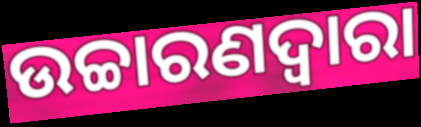
ଉଚ୍ଚାରଣଦ୍ଵାରା